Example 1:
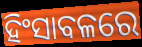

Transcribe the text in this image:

ହିଂସାବଳରେ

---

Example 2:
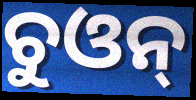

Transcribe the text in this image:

ଚୁଓନ୍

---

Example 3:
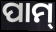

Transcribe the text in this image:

ପାମ୍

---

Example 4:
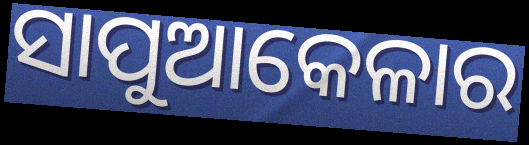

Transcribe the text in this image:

ସାପୁଆକେଳାର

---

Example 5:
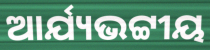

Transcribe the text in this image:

ଆର୍ଯ୍ୟଭଟ୍ଟୀୟ